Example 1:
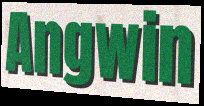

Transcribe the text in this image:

Angwin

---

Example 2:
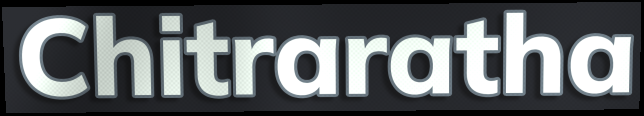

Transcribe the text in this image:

Chitraratha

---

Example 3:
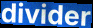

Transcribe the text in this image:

divider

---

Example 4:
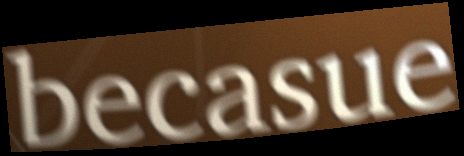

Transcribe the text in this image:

becasue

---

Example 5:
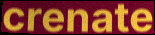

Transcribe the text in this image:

crenate